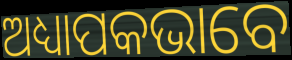
ଅଧ୍ୟାପକଭାବେ